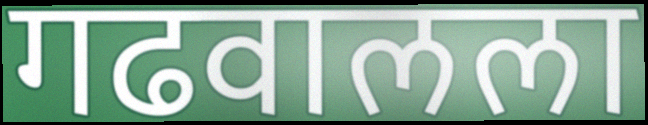
गढवालला